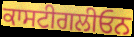
ਕਾਸਟੀਗਲੀਓਨ